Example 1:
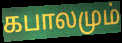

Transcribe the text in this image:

கபாலமும்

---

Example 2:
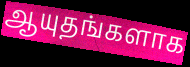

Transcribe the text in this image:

ஆயுதங்களாக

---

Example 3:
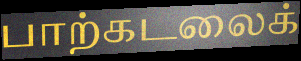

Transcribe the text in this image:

பாற்கடலைக்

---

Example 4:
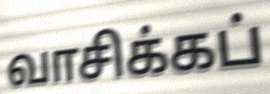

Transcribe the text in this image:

வாசிக்கப்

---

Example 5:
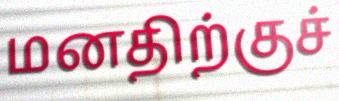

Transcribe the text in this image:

மனதிற்குச்